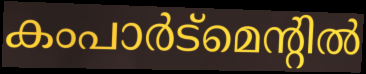
കംപാർട്മെന്റിൽ